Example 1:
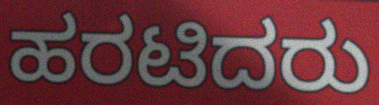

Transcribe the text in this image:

ಹರಟಿದರು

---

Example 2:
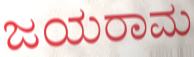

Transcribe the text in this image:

ಜಯರಾಮ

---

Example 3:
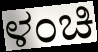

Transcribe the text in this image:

ಳಂಚಿ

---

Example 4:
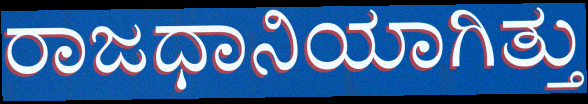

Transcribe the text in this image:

ರಾಜಧಾನಿಯಾಗಿತ್ತು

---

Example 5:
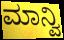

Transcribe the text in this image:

ಮಾನ್ವಿ